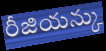
రీజియన్కు